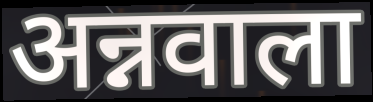
अन्नवाला